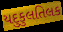
યદુકુલતિલક